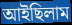
আইছিলাম